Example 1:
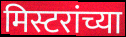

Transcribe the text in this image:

मिस्टरांच्या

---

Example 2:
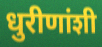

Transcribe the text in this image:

धुरीणांशी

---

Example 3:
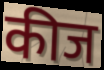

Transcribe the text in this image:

कीज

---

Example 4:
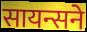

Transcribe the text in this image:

सायन्सने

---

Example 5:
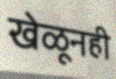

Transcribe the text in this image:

खेळूनही